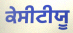
ਕੇਸੀਟੀਯੂ